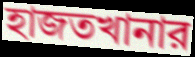
হাজতখানার